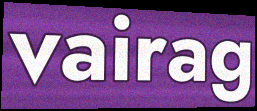
vairag